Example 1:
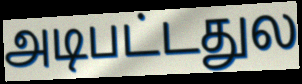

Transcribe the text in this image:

அடிபட்டதுல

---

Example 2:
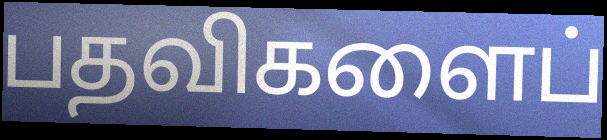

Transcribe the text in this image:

பதவிகளைப்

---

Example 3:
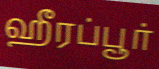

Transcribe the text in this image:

ஹீரப்பூர்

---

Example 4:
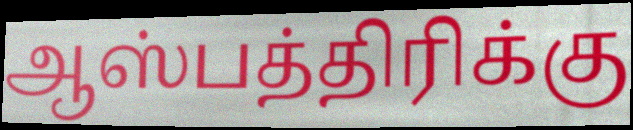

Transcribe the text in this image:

ஆஸ்பத்திரிக்கு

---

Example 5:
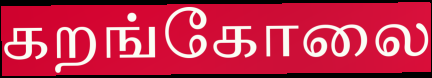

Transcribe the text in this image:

கறங்கோலை